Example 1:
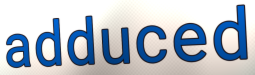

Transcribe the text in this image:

adduced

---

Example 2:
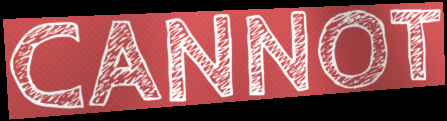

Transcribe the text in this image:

CANNOT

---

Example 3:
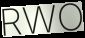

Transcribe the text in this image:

RWO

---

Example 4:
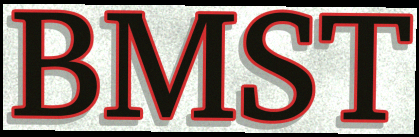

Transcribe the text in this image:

BMST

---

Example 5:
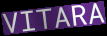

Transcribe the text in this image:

VITARA